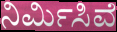
ನಿರ್ಮಿಸಿವೆ